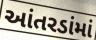
આંતરડાંમાં